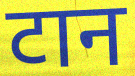
टान